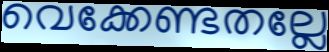
വെക്കേണ്ടതല്ലേ